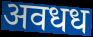
अवधध